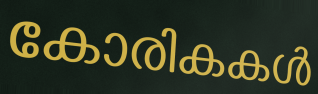
കോരികകൾ